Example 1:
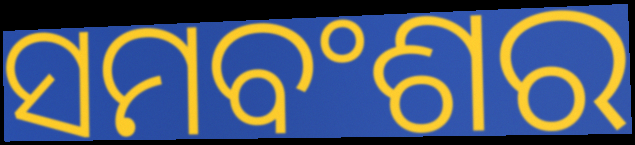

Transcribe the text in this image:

ସମବଂଶର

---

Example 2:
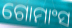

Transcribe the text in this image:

ଗୋମାଂସ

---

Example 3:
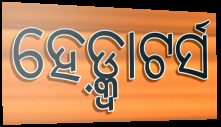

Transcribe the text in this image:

ହେଡ଼୍କ୍ୱାଟର୍ସ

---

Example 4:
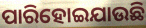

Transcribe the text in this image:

ପାରିହୋଇଯାଉଛି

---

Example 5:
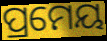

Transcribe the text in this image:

ପ୍ରମେୟ